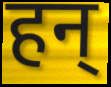
हन्